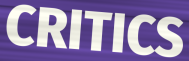
CRITICS